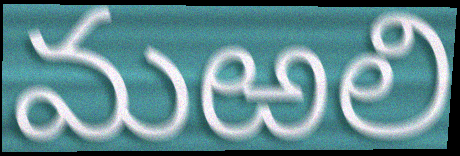
మఱలి